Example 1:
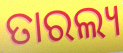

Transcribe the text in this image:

ତାରଲ୍ୟ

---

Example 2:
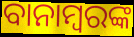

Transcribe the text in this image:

ବାନାମ୍ବରଙ୍କ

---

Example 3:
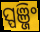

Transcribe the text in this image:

ସ୍ପଞ୍ଜିଂ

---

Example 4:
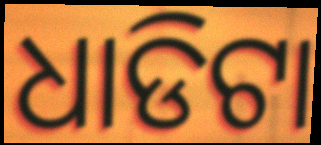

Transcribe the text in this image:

ଧାଡିଟା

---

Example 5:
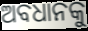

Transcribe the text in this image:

ଅବଧାନକୁ